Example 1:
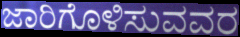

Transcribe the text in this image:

ಜಾರಿಗೊಳಿಸುವವರ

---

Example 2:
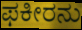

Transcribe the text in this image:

ಫಕೀರನು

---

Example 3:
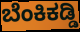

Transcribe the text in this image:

ಬೆಂಕಿಕಡ್ಡಿ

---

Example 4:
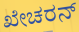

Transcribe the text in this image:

ಖೇಚರನ್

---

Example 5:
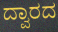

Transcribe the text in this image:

ದ್ವಾರದ